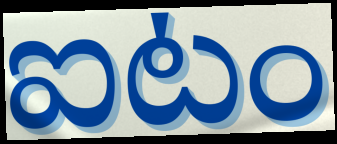
ఐటం